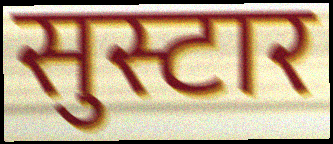
सुस्टार